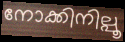
നോക്കിനില്പൂ